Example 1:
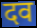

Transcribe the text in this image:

दव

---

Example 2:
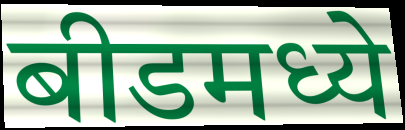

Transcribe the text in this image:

बीडमध्ये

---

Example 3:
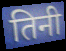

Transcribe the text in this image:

तिनी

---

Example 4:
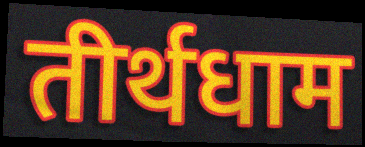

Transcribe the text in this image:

तीर्थधाम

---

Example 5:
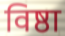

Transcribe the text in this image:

विष्ठा